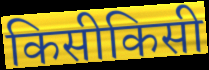
किसीकिसी